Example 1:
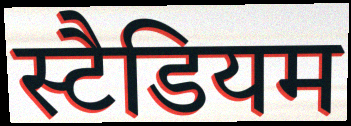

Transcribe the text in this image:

स्टैडियम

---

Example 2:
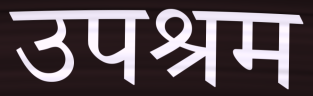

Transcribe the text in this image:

उपश्रम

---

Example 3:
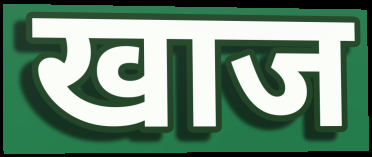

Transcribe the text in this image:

खाज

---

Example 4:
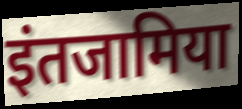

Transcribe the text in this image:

इंतजामिया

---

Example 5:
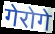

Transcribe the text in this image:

गेरोगे